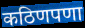
कठिणपणा